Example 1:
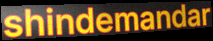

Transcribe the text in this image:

shindemandar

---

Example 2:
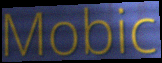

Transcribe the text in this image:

Mobic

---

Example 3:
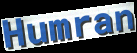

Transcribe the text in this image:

Humran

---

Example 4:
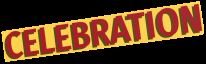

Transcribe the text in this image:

CELEBRATION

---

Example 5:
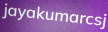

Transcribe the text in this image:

jayakumarcsj